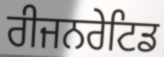
ਰੀਜਨਰੇਟਿਡ